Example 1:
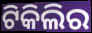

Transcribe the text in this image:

ଟିକିଲିର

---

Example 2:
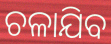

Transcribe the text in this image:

ଚଳାଯିବ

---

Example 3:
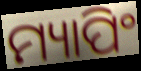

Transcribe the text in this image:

ମ୍ୟାପିଂ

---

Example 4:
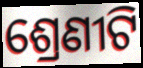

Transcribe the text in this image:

ଶ୍ରେଣୀଟି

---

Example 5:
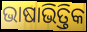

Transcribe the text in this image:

ଭାଷାଭିତ୍ତିକ